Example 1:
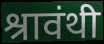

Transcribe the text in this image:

श्रावंथी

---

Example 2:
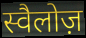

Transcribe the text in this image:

स्वैलोज़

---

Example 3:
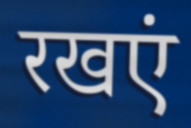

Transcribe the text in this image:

रखएं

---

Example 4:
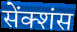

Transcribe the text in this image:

सेंक्शंस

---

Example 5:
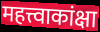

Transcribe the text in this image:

महत्त्वाकांक्षा